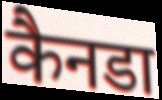
कैनडा